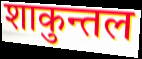
शाकुन्तल